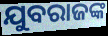
ଯୁବରାଜଙ୍କ